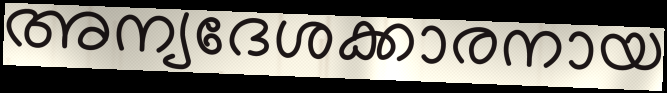
അന്യദേശക്കാരനായ